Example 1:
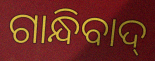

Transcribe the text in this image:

ଗାନ୍ଧିବାଦ୍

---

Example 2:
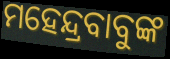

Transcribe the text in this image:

ମହେନ୍ଦ୍ରବାବୁଙ୍କ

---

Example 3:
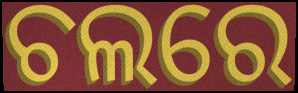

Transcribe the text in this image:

ଚଲରେ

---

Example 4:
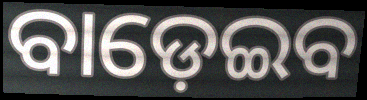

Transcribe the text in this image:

ବାଡ଼େଇବ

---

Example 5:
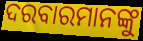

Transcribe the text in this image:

ଦରବାରମାନଙ୍କୁ